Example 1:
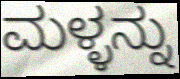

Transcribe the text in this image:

ಮಳ್ಳನ್ನು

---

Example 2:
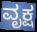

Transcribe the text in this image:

ವೃಕ್ಷ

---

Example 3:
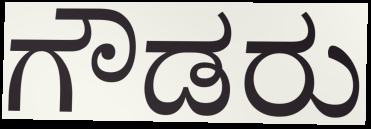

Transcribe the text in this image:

ಗೌಡರು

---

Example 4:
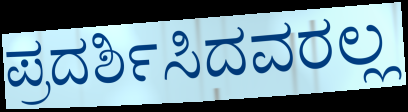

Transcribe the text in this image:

ಪ್ರದರ್ಶಿಸಿದವರಲ್ಲ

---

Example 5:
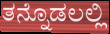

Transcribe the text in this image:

ತನ್ನೊಡಲಲ್ಲಿ